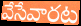
వేసేవారట